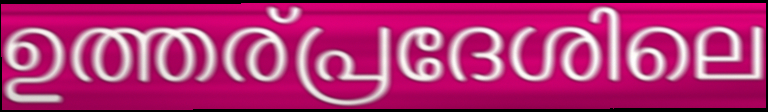
ഉത്തര്പ്രദേശിലെ